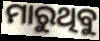
ମାରୁଥିବୁ